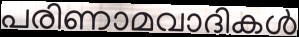
പരിണാമവാദികൾ